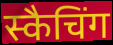
स्कैचिंग